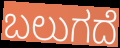
ಬಲುಗದೆ